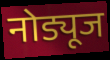
नोड्यूज